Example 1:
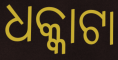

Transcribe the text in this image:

ଧକ୍କାଟା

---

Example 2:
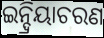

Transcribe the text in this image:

ଇନ୍ଦ୍ରିୟାଚରଣ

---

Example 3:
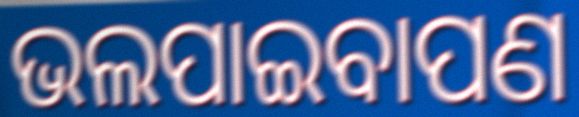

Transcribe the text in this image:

ଭଲପାଇବାପଣ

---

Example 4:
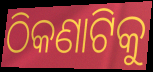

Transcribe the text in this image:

ଠିକଣାଟିକୁ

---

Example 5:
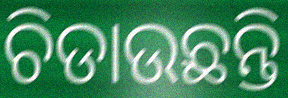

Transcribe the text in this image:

ଚିଡାଉଛନ୍ତି